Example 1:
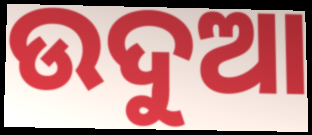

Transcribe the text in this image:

ଉଦୁଆ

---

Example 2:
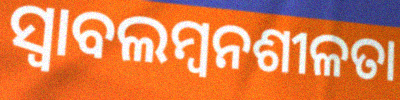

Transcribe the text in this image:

ସ୍ୱାବଲମ୍ବନଶୀଳତା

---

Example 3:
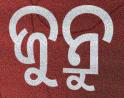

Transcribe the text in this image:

ଜୁନ୍ରୁ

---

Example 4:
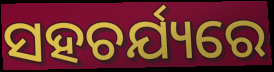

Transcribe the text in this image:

ସହଚର୍ଯ୍ୟରେ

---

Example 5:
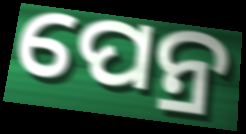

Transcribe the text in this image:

ପେନ୍ର